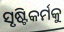
ସୃଷ୍ଟିକର୍ମକୁ